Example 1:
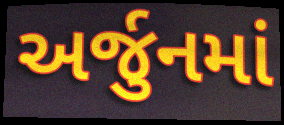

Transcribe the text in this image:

અર્જુનમાં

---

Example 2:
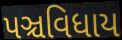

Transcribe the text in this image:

પઞ્ચવિધાય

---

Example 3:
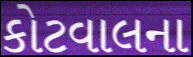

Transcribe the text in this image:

કોટવાલના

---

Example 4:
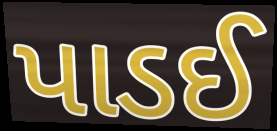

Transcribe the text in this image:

પાડઈ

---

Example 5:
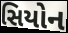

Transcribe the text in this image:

સિયોન